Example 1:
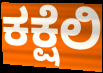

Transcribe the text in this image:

ಕಕ್ಷೆಲಿ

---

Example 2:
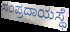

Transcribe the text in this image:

ಸಂಪ್ರದಾಯಸ್ಥೆ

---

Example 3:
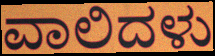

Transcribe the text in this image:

ವಾಲಿದಳು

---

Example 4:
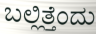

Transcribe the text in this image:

ಬಲ್ಲಿತ್ತೆಂದು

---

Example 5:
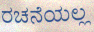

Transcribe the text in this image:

ರಚನೆಯಲ್ಲ